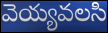
వెయ్యవలసి